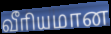
வீரியமான